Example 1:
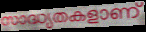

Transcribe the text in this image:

സാദ്ധ്യതകളാണ്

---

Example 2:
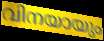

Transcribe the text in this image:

വിനയായും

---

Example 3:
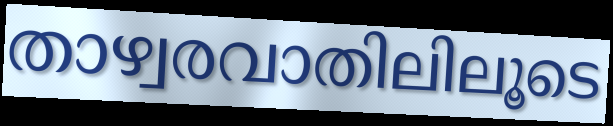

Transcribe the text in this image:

താഴ്വരവാതിലിലൂടെ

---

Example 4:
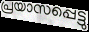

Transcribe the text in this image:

പ്രയാസപ്പെട്ടു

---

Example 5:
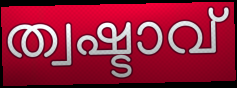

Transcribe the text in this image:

ത്വഷ്ടാവ്